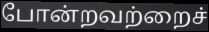
போன்றவற்றைச்